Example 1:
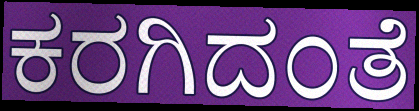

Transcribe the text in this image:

ಕರಗಿದಂತೆ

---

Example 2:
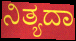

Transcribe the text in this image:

ನಿತ್ಯದಾ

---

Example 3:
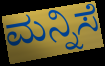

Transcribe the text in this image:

ಮನ್ನಿಸೆ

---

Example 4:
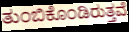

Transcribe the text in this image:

ತುಂಬಿಕೊಂಡಿರುತ್ತವೆ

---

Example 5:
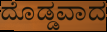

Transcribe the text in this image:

ದೊಡ್ಡವಾದ